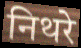
निथरे